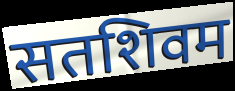
सतशिवम